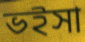
ভইসা